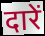
दारें